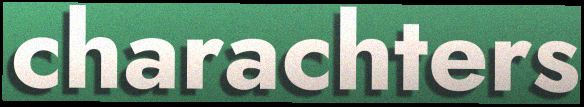
charachters